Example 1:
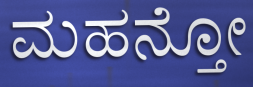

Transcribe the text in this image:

ಮಹನ್ತೋ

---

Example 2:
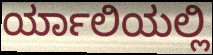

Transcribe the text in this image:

ರ್ಯಾಲಿಯಲ್ಲಿ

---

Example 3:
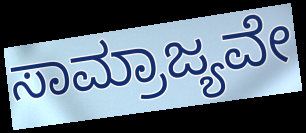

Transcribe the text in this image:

ಸಾಮ್ರಾಜ್ಯವೇ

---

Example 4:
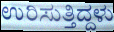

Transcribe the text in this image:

ಉರಿಸುತ್ತಿದ್ದಳು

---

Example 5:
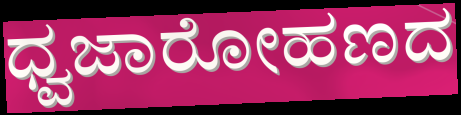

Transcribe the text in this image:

ಧ್ವಜಾರೋಹಣದ